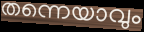
തന്നെയാവും